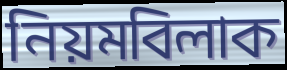
নিয়মবিলাক